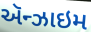
ઍન્ઝાઇમ